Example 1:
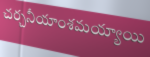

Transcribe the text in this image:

చర్చనీయాంశమయ్యాయి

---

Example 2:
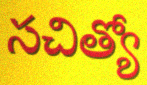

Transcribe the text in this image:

సచిత్యో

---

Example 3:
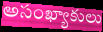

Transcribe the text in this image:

అసంఖ్యాకులు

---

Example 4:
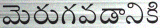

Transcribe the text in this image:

మెరుగవడానికి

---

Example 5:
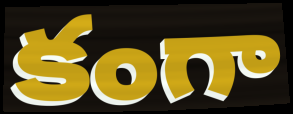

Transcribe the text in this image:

కంగా